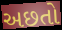
અછતો